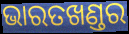
ଭାରତଖଣ୍ଡର